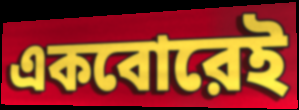
একবোরেই